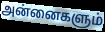
அன்னைகளும்